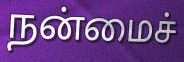
நன்மைச்